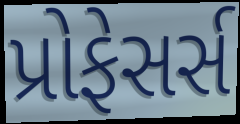
પ્રોફેસર્સ